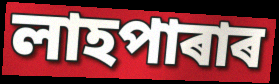
লাহপাৰাৰ